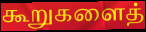
கூறுகளைத்